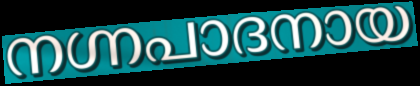
നഗ്നപാദനായ